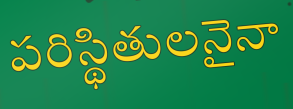
పరిస్థితులనైనా